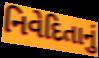
નિવેદિતાનું